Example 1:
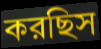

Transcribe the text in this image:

করছিস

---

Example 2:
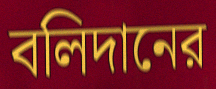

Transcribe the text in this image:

বলিদানের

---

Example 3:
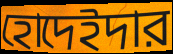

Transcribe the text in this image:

হোদেইদার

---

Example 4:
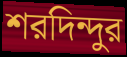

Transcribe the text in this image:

শরদিন্দুর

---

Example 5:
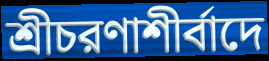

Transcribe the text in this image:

শ্রীচরণাশীর্বাদে